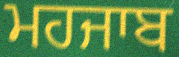
ਮਹਜਾਬ